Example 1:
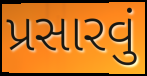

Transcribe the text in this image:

પ્રસારવું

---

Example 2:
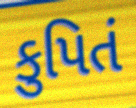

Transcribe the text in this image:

કુપિતં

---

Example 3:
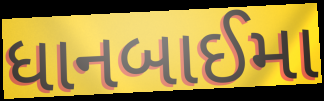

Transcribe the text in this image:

ધાનબાઈમા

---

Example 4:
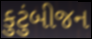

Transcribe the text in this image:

કુટુંબીજન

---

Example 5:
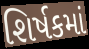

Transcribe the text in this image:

શિર્ષકમાં